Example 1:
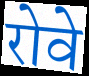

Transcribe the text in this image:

रोवे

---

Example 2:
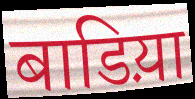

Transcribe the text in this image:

बाडिय़ा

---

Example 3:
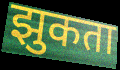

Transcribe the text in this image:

झुकता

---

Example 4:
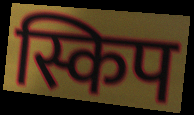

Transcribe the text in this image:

स्किप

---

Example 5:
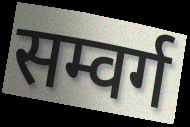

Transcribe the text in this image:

सम्वर्ग